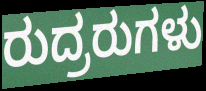
ರುದ್ರರುಗಳು